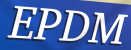
EPDM